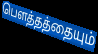
பெளத்தத்தையும்